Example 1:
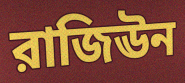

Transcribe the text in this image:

রাজিঊন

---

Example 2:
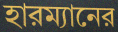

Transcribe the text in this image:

হারম্যানের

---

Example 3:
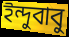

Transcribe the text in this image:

ইন্দুবাবু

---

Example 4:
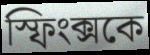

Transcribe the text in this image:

স্ফিংক্সকে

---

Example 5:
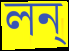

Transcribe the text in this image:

লন্